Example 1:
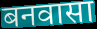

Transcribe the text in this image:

बनवासा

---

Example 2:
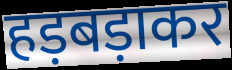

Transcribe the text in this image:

हड़बड़ाकर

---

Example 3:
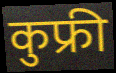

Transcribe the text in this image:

कुफ्री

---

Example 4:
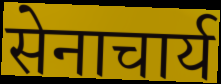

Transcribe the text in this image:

सेनाचार्य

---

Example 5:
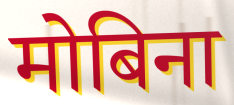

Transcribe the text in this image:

मोबिना